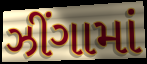
ઝીંગામાં